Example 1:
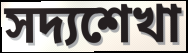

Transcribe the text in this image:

সদ্যশেখা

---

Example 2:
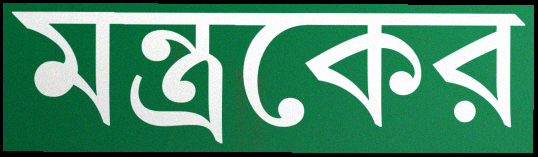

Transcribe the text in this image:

মন্ত্রকের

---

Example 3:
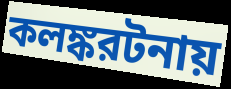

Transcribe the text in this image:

কলঙ্করটনায়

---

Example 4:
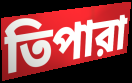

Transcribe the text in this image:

তিপারা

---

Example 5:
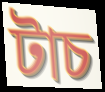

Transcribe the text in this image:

টাচ